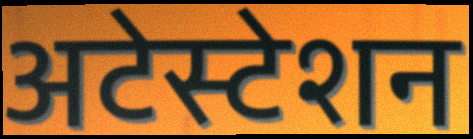
अटेस्टेशन